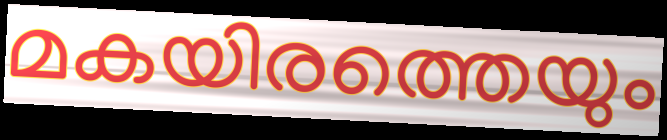
മകയിരത്തെയും